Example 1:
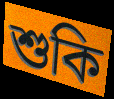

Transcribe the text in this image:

শুকি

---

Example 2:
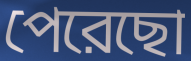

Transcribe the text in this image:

পেরেছো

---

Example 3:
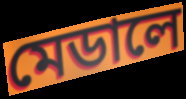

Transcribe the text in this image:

মেডালে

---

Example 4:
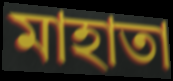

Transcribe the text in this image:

মাহাতা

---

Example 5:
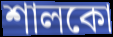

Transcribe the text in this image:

শালকো